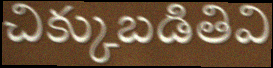
చిక్కుబడితివి